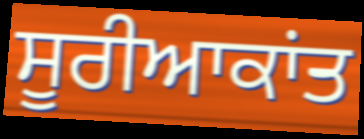
ਸੂਰੀਆਕਾਂਤ